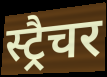
स्ट्रैचर